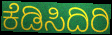
ಕೆಡಿಸಿದಿರಿ